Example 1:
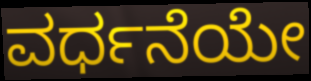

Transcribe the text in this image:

ವರ್ಧನೆಯೇ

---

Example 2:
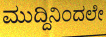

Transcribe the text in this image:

ಮುದ್ದಿನಿಂದಲೇ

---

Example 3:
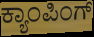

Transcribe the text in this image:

ಕ್ಯಾಂಪಿಂಗ್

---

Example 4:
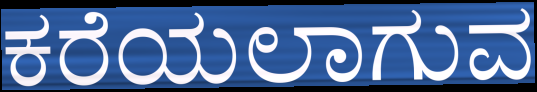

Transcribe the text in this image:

ಕರೆಯಲಾಗುವ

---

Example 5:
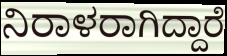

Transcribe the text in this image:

ನಿರಾಳರಾಗಿದ್ದಾರೆ